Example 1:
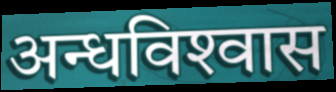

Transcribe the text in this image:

अन्‍धविश्‍वास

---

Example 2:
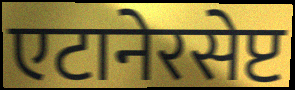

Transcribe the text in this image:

एटानेरसेप्ट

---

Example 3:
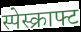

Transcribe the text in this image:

स्पेस्क्राफ्ट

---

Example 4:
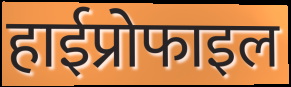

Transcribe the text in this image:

हाईप्रोफाइल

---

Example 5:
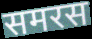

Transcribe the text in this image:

समरस